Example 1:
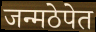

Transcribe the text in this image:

जन्मठेपेत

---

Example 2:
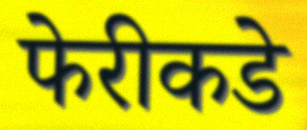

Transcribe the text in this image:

फेरीकडे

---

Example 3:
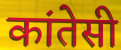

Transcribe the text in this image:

कांतेसी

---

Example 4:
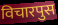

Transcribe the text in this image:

विचारपुस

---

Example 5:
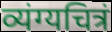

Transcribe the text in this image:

व्यंग्यचित्रं